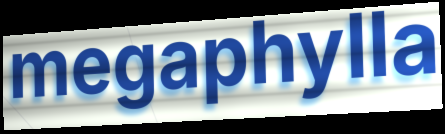
megaphylla